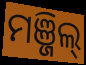
ମଞ୍ଜିଲ୍